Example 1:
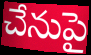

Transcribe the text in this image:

చేనుపై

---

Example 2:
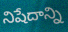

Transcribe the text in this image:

నిషేదాన్ని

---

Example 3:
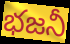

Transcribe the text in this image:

భజనీ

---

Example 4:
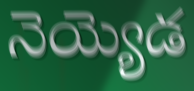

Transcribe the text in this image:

నెయ్యెడ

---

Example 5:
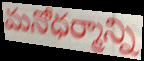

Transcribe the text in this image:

మనోధర్మాన్ని